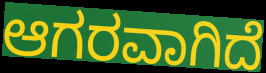
ಆಗರವಾಗಿದೆ